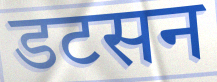
डटसन